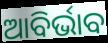
ଆବିର୍ଭାବ